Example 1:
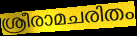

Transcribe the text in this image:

ശ്രീരാമചരിതം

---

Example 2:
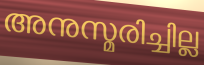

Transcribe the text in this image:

അനുസ്മരിച്ചില്ല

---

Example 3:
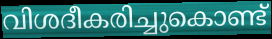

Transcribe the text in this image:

വിശദീകരിച്ചുകൊണ്ട്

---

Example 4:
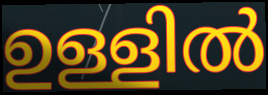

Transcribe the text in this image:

ഉള്ളിൽ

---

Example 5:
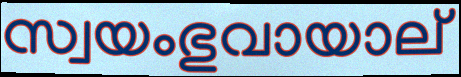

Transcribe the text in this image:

സ്വയംഭുവായാല്